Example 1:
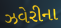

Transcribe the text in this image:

ઝવેરીના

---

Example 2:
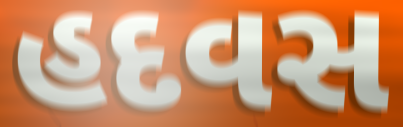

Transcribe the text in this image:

હદવસ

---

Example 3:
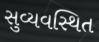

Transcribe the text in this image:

સુવ્યવસ્થિત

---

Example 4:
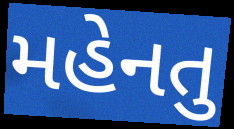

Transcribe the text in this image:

મહેનતુ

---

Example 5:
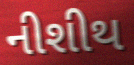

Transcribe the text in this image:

નીશીથ